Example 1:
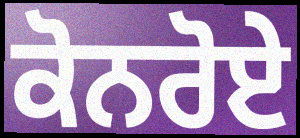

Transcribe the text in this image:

ਕੋਨਰੋਏ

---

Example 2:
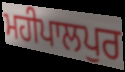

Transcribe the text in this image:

ਮਹੀਪਾਲਪੁਰ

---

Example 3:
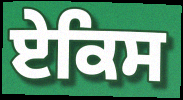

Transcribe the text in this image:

ਏਕਿਸ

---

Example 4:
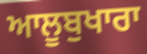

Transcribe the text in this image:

ਆਲੂਬੁਖਾਰਾ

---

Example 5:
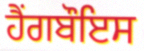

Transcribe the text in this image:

ਹੈਂਗਬੌਇਸ